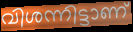
വിശന്നിട്ടാണ്